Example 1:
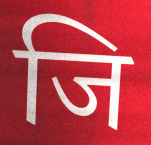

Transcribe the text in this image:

जि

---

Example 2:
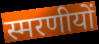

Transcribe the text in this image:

स्मरणीयों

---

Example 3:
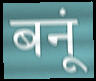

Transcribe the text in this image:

बनूं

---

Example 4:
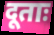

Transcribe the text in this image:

दूताः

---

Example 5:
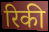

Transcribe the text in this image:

रिकी